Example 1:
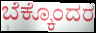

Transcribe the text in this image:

ಬೆಕ್ಕೊಂದರ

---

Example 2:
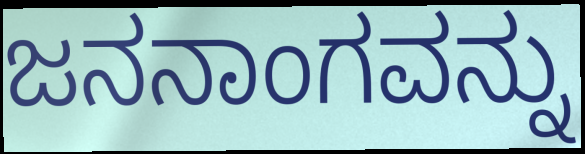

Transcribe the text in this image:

ಜನನಾಂಗವನ್ನು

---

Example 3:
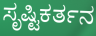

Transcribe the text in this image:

ಸೃಷ್ಟಿಕರ್ತನ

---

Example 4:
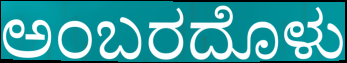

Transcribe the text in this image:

ಅಂಬರದೊಳು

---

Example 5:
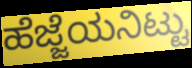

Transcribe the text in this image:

ಹೆಜ್ಜೆಯನಿಟ್ಟು